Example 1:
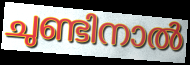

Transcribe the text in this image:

ചുണ്ടിനാൽ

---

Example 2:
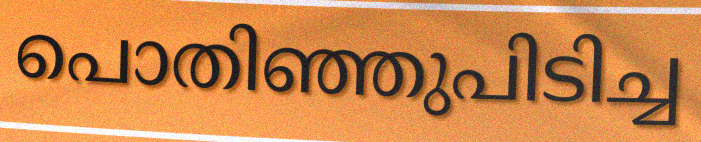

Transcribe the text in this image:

പൊതിഞ്ഞുപിടിച്ച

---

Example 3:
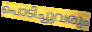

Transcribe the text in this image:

പൊടിച്ചുവരും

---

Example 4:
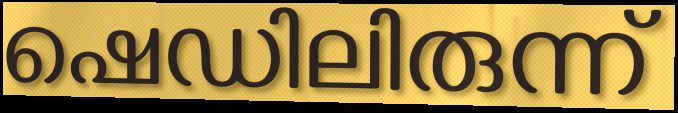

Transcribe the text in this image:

ഷെഡിലിരുന്ന്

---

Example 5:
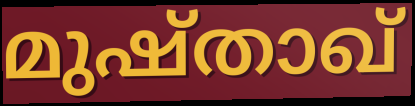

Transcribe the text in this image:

മുഷ്താഖ്